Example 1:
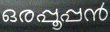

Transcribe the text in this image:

ഒരപ്പൂപ്പൻ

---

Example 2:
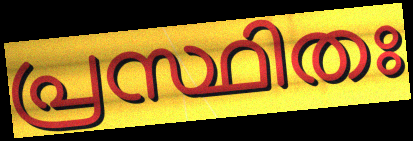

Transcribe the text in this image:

പ്രസ്ഥിതഃ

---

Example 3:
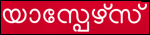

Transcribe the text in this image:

യാസ്പേഴ്സ്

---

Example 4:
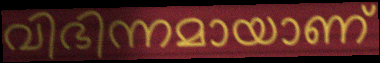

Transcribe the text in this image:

വിഭിന്നമായാണ്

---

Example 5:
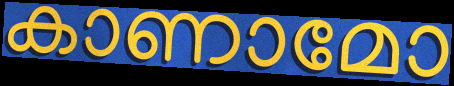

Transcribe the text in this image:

കാണാമോ